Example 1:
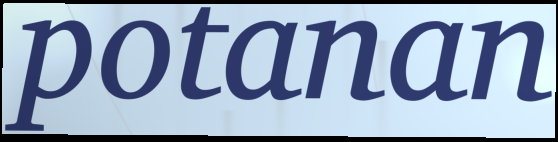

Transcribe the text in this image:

potanan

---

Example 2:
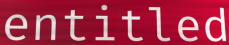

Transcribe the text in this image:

entitled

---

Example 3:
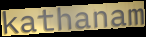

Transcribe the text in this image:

kathanam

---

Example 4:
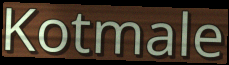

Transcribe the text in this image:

Kotmale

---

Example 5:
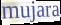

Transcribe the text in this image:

mujara